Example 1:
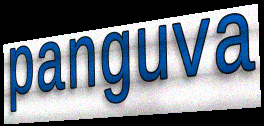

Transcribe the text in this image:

panguva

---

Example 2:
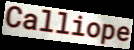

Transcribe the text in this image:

Calliope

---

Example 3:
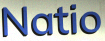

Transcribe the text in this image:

Natio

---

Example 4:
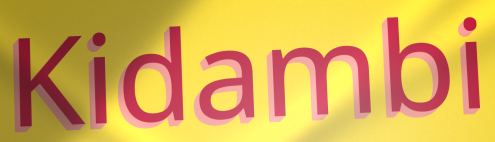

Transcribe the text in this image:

Kidambi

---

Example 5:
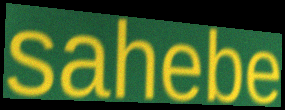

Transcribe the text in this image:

sahebe